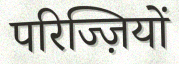
परिज्ज़ियों